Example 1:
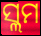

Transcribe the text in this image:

ସ୍ଲମ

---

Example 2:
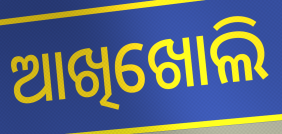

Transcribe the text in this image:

ଆଖିଖୋଲି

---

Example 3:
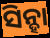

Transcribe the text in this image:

ସିନ୍ହା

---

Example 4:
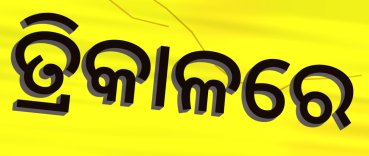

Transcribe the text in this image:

ତ୍ରିକାଳରେ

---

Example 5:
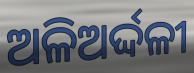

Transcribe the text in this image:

ଅଳିଅର୍ଦ୍ଦଳୀ